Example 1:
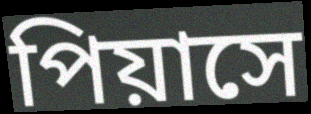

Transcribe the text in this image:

পিয়াসে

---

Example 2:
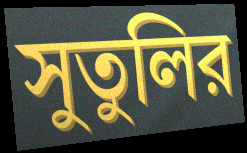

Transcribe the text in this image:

সুতুলির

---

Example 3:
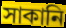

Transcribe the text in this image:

সাকানি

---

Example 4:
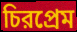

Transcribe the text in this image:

চিরপ্রেম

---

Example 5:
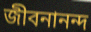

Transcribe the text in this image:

জীবনানন্দ